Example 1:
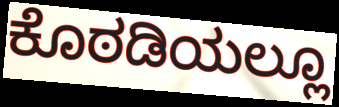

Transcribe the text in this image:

ಕೊಠಡಿಯಲ್ಲೂ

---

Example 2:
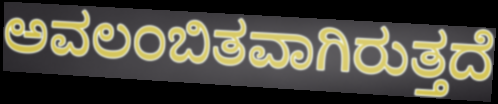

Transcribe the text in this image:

ಅವಲಂಬಿತವಾಗಿರುತ್ತದೆ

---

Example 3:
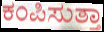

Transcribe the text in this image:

ಕಂಪಿಸುತ್ತಾ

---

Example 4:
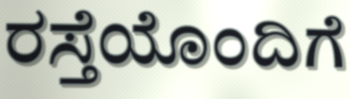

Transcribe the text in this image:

ರಸ್ತೆಯೊಂದಿಗೆ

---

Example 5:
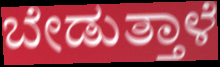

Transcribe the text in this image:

ಬೇಡುತ್ತಾಳೆ